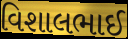
વિશાલભાઈ